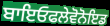
ਬਾਇਓਫਲੇਵੋਨੋਇਡ